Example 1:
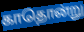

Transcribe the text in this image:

காதொன்று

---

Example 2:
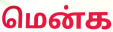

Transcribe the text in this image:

மென்க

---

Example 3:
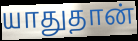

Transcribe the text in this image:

யாதுதான்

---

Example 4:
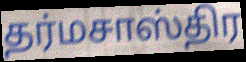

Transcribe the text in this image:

தர்மசாஸ்திர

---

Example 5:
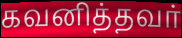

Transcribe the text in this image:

கவனித்தவர்